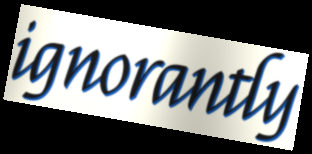
ignorantly